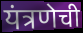
यंत्रणेची